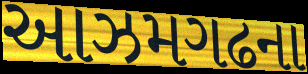
આઝમગઢના